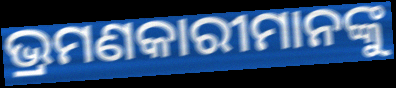
ଭ୍ରମଣକାରୀମାନଙ୍କୁ